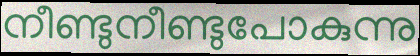
നീണ്ടുനീണ്ടുപോകുന്നു